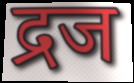
द्रज